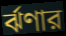
র্ঝণার